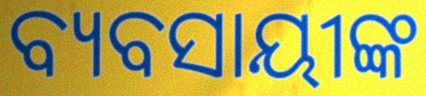
ବ୍ୟବସାୟୀଙ୍କ